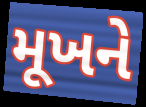
મૂખને